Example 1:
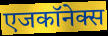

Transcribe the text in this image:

एजकॉनेक्स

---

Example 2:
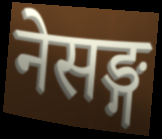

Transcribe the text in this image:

नेसङ्ग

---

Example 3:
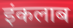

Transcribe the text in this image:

इंकलाब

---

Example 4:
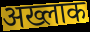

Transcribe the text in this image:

अख्लाक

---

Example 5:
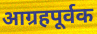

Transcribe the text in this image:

आग्रहपूर्वक